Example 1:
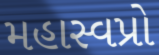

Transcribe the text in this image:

મહાસ્વપ્રો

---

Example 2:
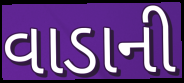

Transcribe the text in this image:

વાડાની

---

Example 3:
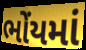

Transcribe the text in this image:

ભોંયમાં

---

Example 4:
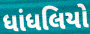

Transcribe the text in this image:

ધાંધલિયો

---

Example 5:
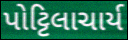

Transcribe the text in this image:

પોટ્ટિલાચાર્ય